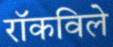
रॉकविले